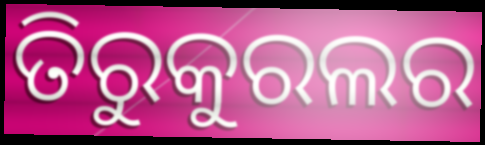
ତିରୁକୁରଲର